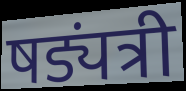
षड्यंत्री